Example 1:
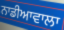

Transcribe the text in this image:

ਨਾਡੀਆਵਾਲਾ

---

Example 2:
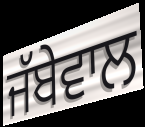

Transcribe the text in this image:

ਜੱਬੇਵਾਲ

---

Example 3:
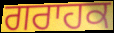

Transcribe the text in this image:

ਗਰਾਹਕ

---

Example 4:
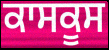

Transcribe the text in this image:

ਕਾਸਕੂਸ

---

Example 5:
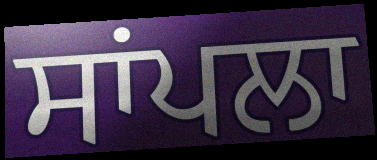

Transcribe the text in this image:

ਸਾਂਪਲਾ